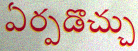
ఏర్పడొచ్చు